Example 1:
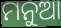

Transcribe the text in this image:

ମନୁଆ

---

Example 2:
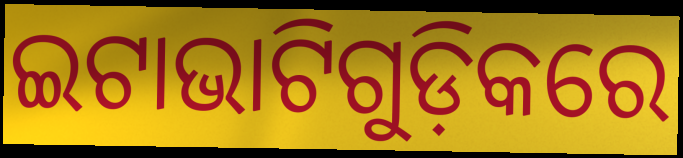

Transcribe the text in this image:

ଇଟାଭାଟିଗୁଡ଼ିକରେ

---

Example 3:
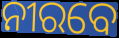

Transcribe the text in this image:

ନୀରବେ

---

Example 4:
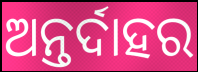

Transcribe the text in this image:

ଅନ୍ତର୍ଦାହର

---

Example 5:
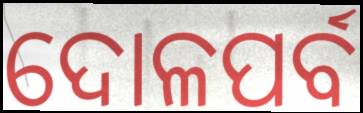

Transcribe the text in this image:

ଦୋଳପର୍ବ